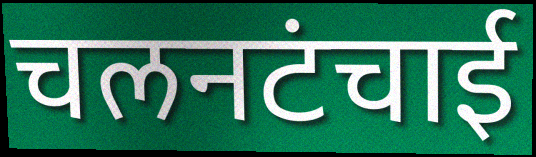
चलनटंचाई